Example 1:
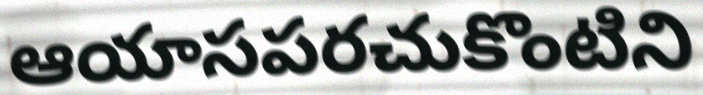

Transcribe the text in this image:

ఆయాసపరచుకొంటిని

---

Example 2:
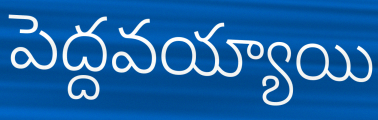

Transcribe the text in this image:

పెద్దవయ్యాయి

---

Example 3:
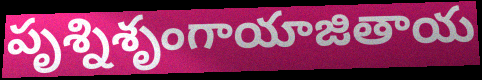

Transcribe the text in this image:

పృశ్నిశృంగాయాజితాయ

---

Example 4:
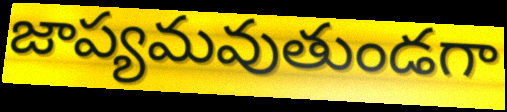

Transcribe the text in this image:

జాప్యమవుతుండగా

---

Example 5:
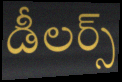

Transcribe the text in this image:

డీలర్స్